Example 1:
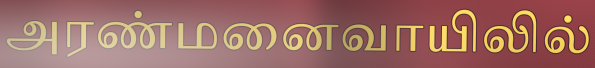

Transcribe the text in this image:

அரண்மனைவாயிலில்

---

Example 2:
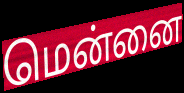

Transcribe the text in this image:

மென்னை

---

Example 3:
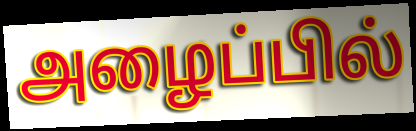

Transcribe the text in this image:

அழைப்பில்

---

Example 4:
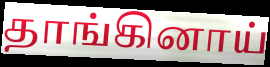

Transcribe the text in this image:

தாங்கினாய்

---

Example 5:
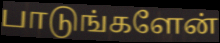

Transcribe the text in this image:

பாடுங்களேன்